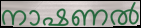
നാഷണൽ